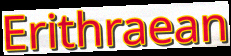
Erithraean